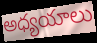
అధ్యయాలు